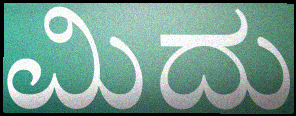
ಮಿದು